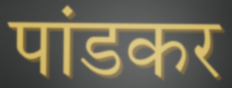
पांडकर